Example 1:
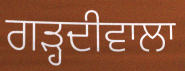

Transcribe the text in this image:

ਗਡ਼੍ਹਦੀਵਾਲਾ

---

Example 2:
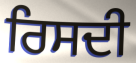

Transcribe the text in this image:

ਰਿਸਦੀ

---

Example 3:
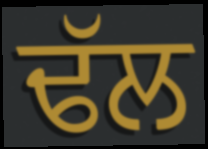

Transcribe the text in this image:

ਢੱਲ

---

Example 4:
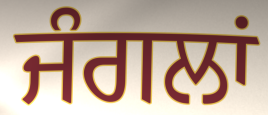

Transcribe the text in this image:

ਜੰਗਲਾਂ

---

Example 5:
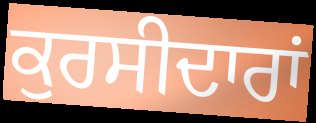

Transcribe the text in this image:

ਕੁਰਸੀਦਾਰਾਂ